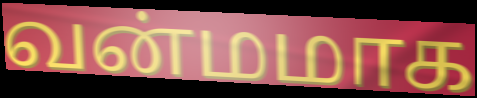
வன்மமாக